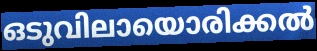
ഒടുവിലായൊരിക്കൽ